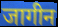
जागीन